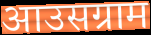
आउसग्राम